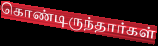
கொண்டிருந்தார்கள்